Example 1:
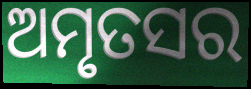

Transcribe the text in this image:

ଅମୃତସର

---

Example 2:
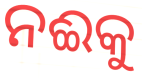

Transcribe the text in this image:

ନଈକୁ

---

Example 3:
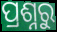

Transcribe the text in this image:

ପ୍ରଶ୍ନରୁ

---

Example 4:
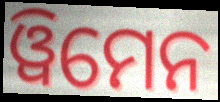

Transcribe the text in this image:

ୱିମେନ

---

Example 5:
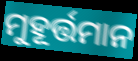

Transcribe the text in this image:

ମୁହୂର୍ତ୍ତମାନ